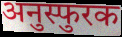
अनुस्फुरक